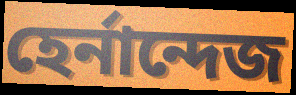
হের্নান্দেজ